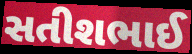
સતીશભાઈ